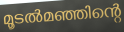
മൂടൽമഞ്ഞിന്റെ